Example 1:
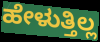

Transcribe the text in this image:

ಹೇಳುತ್ತಿಲ್ಲ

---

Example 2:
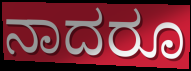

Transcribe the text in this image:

ನಾದರೂ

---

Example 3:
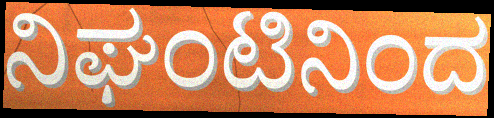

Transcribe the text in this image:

ನಿಘಂಟಿನಿಂದ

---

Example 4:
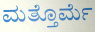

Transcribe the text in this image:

ಮತ್ತೊರ್ಮೆ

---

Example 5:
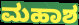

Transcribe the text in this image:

ಮಹಾಶ